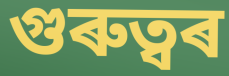
গুৰুত্বৰ